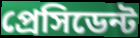
প্রেসিডেন্ট